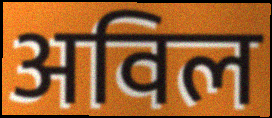
अविल